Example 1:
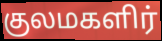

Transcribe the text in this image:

குலமகளிர்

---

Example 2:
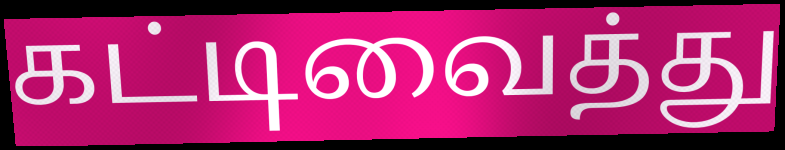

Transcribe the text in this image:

கட்டிவைத்து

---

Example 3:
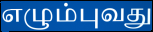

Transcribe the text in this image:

எழும்புவது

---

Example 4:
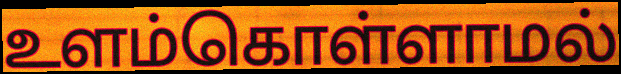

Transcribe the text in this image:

உளம்கொள்ளாமல்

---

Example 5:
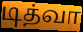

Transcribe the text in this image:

டித்வா